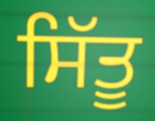
ਸਿੱਤੂ